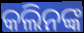
କଲିନଙ୍କ